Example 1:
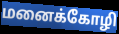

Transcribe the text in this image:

மனைக்கோழி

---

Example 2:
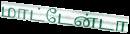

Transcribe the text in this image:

மாட்டேன்டா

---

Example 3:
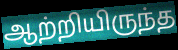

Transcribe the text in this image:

ஆற்றியிருந்த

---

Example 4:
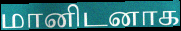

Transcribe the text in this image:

மானிடனாக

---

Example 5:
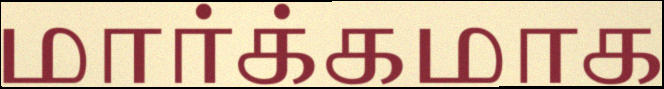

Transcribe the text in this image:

மார்க்கமாக